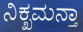
ನಿಕ್ಖಮನ್ತಾ